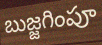
బుజ్జగింపూ